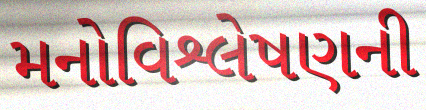
મનોવિશ્લેષણની